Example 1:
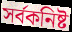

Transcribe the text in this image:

সর্বকনিষ্ট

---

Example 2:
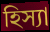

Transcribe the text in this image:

হিস্যা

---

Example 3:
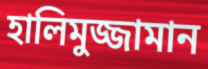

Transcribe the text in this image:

হালিমুজ্জামান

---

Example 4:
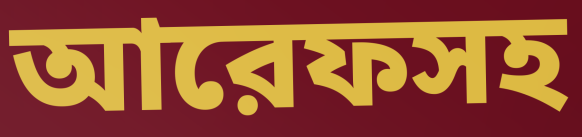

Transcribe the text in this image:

আরেফসহ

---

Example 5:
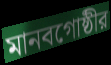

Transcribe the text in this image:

মানবগোষ্ঠীর